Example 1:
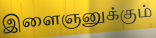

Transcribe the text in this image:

இளைஞனுக்கும்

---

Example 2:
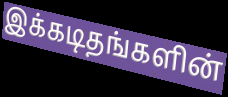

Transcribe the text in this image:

இக்கடிதங்களின்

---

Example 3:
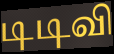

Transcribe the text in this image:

டிடிவி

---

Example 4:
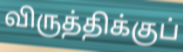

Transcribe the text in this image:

விருத்திக்குப்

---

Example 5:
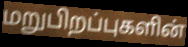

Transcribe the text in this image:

மறுபிறப்புகளின்